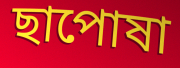
ছাপোষা